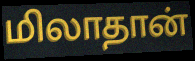
மிலாதான்